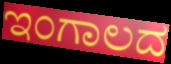
ಇಂಗಾಲದ